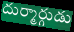
దుర్మార్గుడు